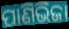
ପାଣିଭିଜା